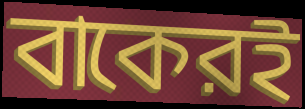
বাকেরই